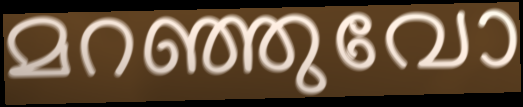
മറഞ്ഞുവോ